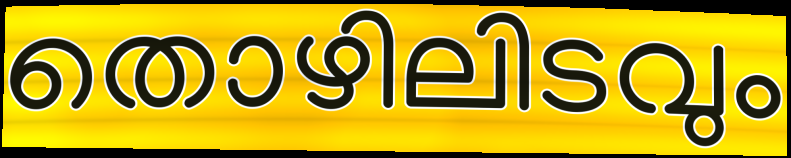
തൊഴിലിടവും